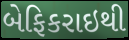
બેફિકરાઇથી